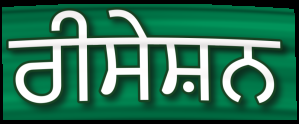
ਰੀਸੇਸ਼ਨ